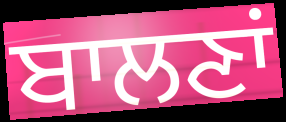
ਬਾਲਣਾਂ